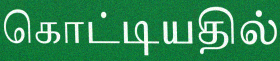
கொட்டியதில்